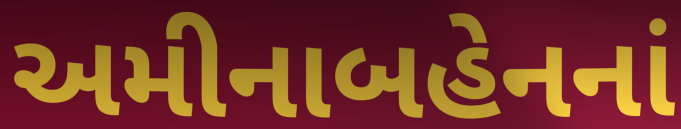
અમીનાબહેનનાં